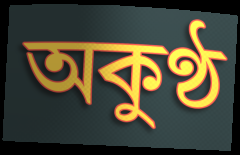
অকুণ্ঠ